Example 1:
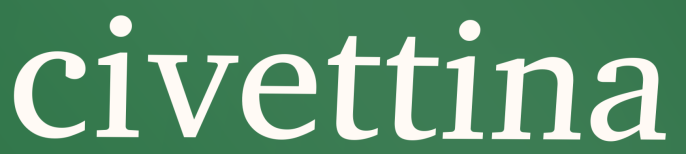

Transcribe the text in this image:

civettina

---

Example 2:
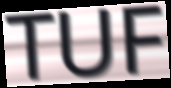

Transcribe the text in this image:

TUF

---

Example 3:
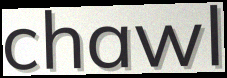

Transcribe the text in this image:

chawl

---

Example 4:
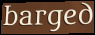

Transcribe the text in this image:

barged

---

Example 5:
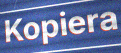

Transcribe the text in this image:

Kopiera